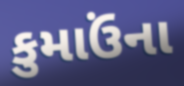
કુમાઉંના